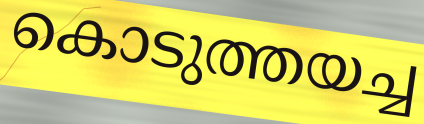
കൊടുത്തയച്ച